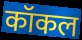
कॉकल